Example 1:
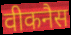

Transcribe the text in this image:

वीकनैस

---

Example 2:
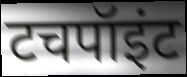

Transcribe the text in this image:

टचपॉइंट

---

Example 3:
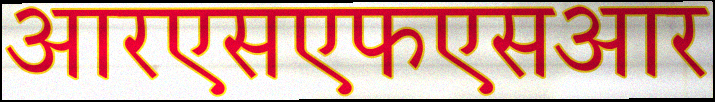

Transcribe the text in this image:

आरएसएफएसआर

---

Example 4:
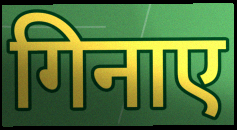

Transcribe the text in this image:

गिनाए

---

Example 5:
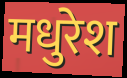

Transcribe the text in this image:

मधुरेश